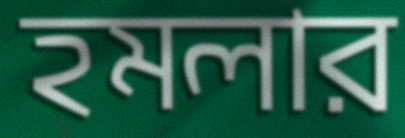
হমলার